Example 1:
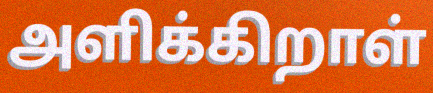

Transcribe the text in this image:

அளிக்கிறாள்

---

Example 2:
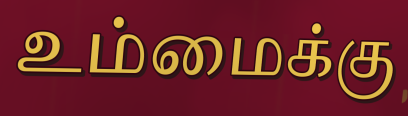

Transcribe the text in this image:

உம்மைக்கு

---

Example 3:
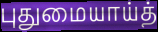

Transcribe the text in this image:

புதுமையாய்த்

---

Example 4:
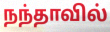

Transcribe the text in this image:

நந்தாவில்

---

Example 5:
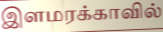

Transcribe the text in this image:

இளமரக்காவில்